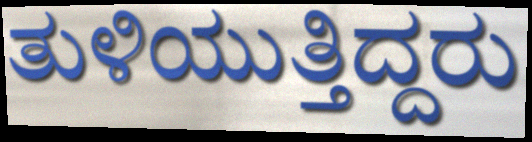
ತುಳಿಯುತ್ತಿದ್ದರು